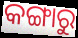
କଙ୍ଗାରୁ